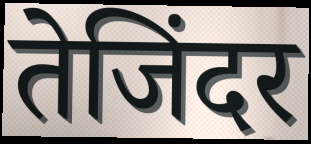
तेजिंदर